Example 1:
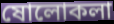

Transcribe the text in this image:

ষোলোকলা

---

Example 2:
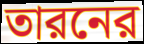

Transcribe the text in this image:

তারনের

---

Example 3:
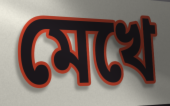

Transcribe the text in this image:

মেখে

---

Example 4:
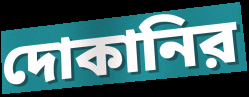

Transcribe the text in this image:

দোকানির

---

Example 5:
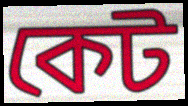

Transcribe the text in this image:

কেট